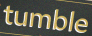
tumble